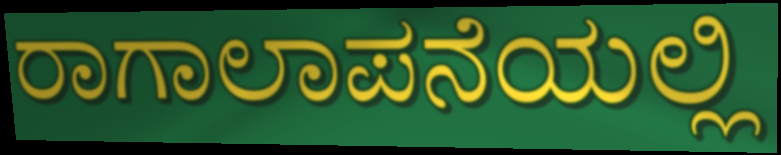
ರಾಗಾಲಾಪನೆಯಲ್ಲಿ